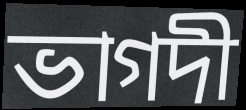
ভাগদী